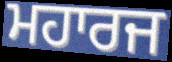
ਮਹਾਰਜ